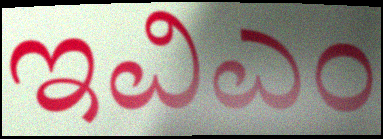
ಇವಿಎಂ